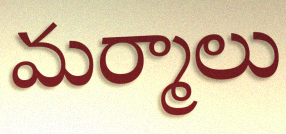
మర్మాలు